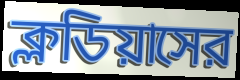
ক্লডিয়াসের